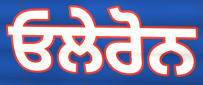
ਓਲੇਰੋਨ